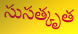
సుసత్కృత